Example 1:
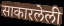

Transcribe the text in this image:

साकारलेली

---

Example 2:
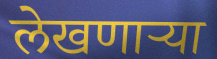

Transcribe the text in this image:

लेखणाऱ्या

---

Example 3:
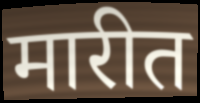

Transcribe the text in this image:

मारीत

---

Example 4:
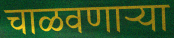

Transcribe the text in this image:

चाळवणाऱ्या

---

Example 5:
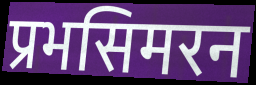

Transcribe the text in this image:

प्रभसिमरन